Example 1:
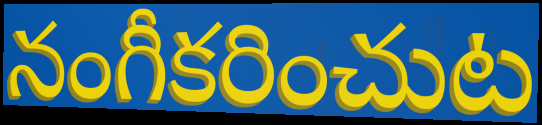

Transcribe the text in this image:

నంగీకరించుట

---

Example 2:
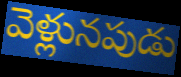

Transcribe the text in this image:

వెళ్లునపుడు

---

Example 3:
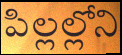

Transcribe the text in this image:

పిల్లల్లోని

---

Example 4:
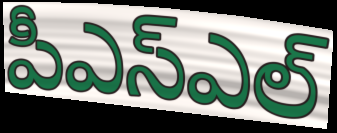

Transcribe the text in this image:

పీఎస్ఎల్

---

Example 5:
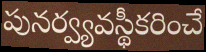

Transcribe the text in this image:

పునర్వ్యవస్థీకరించే